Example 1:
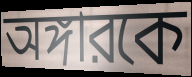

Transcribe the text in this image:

অঙ্গারকে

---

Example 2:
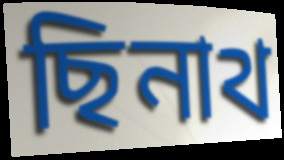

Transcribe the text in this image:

ছিনাথ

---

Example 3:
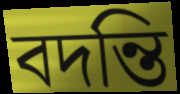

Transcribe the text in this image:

বদন্তি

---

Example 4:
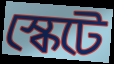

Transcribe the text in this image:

স্কেটে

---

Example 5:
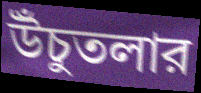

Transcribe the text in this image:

উঁচুতলার